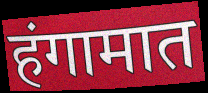
हंगामात